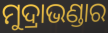
ମୁଦ୍ରାଭଣ୍ଡାର